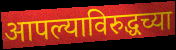
आपल्याविरुद्धच्या